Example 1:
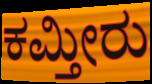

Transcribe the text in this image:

ಕಮ್ತೀರು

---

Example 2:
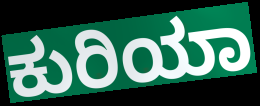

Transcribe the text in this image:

ಕುರಿಯಾ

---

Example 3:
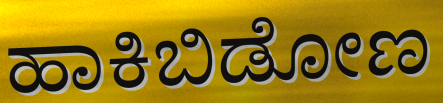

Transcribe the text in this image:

ಹಾಕಿಬಿಡೋಣ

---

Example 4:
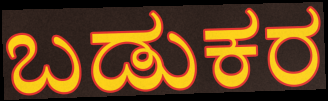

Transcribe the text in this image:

ಬಡುಕರ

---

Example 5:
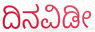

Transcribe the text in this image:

ದಿನವಿಡೀ